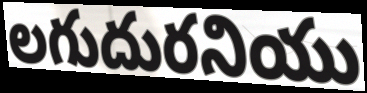
లగుదురనియు